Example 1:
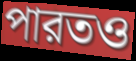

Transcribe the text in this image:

পারতও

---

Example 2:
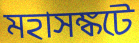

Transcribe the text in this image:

মহাসঙ্কটে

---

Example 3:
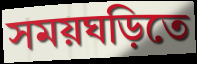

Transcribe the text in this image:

সময়ঘড়িতে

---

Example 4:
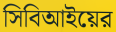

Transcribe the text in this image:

সিবিআইয়ের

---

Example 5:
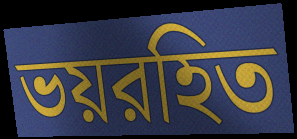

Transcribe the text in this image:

ভয়রহিত